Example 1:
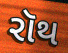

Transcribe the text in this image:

રૉથ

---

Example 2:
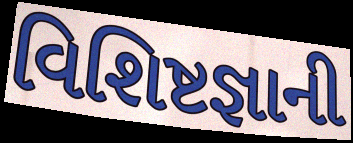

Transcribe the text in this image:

વિશિષ્ટજ્ઞાની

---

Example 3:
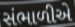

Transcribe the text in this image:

સંભાળીએ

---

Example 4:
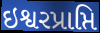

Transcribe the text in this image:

ઇશ્વરપ્રાપ્તિ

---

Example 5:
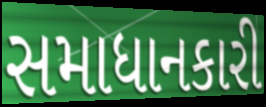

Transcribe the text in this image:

સમાધાનકારી